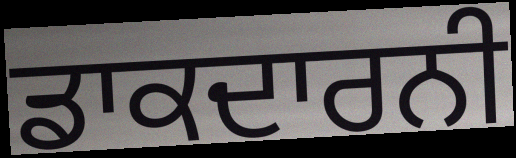
ਡਾਕਦਾਰਨੀ